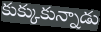
కుక్కుకున్నాడు